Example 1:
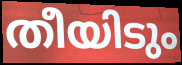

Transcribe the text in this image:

തീയിടും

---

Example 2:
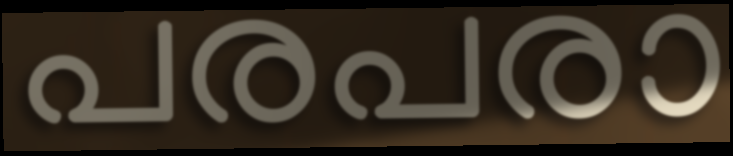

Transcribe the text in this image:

പരപരാ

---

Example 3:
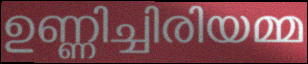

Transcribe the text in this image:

ഉണ്ണിച്ചിരിയമ്മ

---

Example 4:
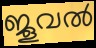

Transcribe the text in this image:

ജൂവൽ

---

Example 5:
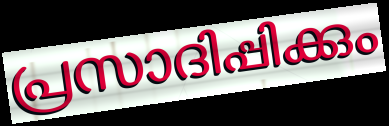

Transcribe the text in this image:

പ്രസാദിപ്പിക്കും